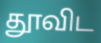
தூவிட